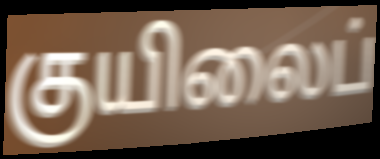
குயிலைப்